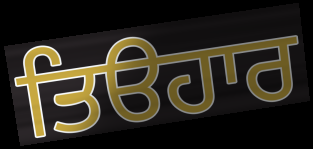
ਤਿੳਹਾਰ